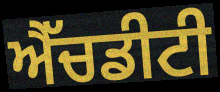
ਐੱਚਡੀਟੀ